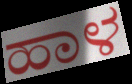
ಹಾಳ